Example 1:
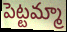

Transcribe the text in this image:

పెట్టమ్మా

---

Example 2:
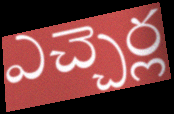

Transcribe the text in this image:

ఎచ్చెర్ల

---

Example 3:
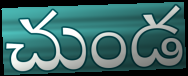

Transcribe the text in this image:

చుండ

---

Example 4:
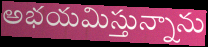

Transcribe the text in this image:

అభయమిస్తున్నాను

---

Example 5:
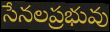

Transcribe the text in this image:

సేనలప్రభువు